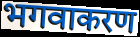
भगवाकरण